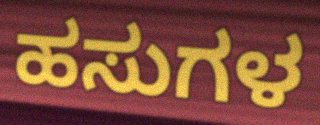
ಹಸುಗಳ